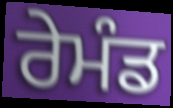
ਰੇਮੰਡ